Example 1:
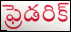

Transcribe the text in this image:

ఫ్రెడరిక్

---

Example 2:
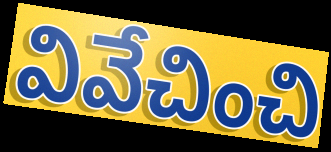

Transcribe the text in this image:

వివేచించి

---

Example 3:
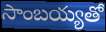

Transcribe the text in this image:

సాంబయ్యతో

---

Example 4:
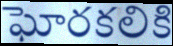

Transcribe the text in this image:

ఘోరకలికి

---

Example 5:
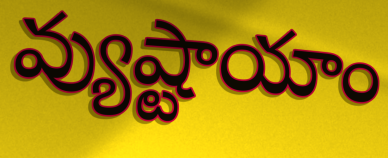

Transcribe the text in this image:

వ్యుష్టాయాం